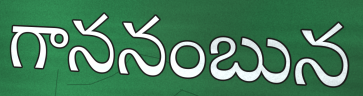
గాననంబున